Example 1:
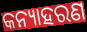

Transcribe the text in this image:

କନ୍ୟାହରଣ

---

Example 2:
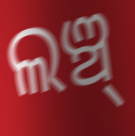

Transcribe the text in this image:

ଲଞ୍ଚ୍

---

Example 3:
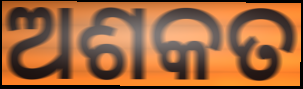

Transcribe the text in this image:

ଅଶକତ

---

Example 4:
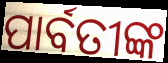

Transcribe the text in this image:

ପାର୍ବତୀଙ୍କ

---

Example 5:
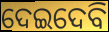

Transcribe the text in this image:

ଦେଇଦେବି